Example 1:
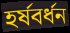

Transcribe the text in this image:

হর্ষবর্ধন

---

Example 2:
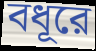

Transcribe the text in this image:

বধূরে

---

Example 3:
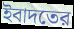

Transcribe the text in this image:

ইবাদতের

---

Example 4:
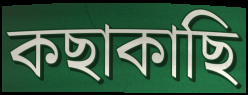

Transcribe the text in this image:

কছাকাছি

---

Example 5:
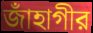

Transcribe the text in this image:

জাঁহাগীর